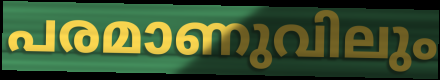
പരമാണുവിലും